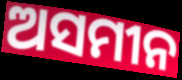
ଅସମୀନ